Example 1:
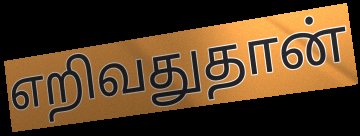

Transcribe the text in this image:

எறிவதுதான்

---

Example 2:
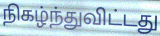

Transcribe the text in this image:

நிகழ்ந்துவிட்டது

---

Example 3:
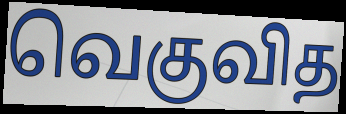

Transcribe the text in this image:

வெகுவித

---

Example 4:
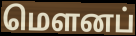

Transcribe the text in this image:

மெளனப்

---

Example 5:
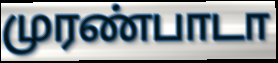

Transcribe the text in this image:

முரண்பாடா